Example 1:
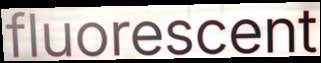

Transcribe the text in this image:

fluorescent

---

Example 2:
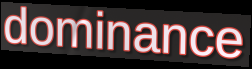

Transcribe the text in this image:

dominance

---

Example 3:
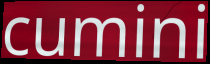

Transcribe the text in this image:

cumini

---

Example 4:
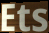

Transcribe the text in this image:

Ets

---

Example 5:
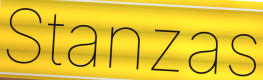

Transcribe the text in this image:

Stanzas